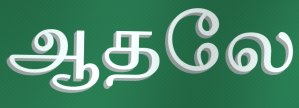
ஆதலே